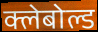
क्लेबोल्ड